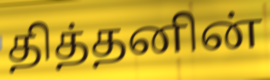
தித்தனின்